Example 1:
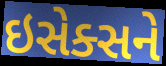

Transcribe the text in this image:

ઇસેક્સને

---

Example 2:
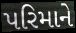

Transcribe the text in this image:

પરિમાને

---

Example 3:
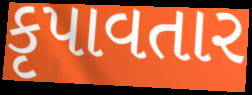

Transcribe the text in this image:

કૃપાવતાર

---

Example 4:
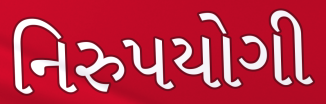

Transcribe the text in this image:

નિરુપયોગી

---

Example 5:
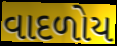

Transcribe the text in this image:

વાદળોય